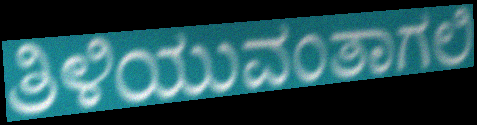
ತಿಳಿಯುವಂತಾಗಲಿ